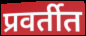
प्रवर्तीत